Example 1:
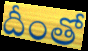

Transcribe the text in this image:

దీంతో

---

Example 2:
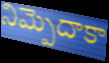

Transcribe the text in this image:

నిమ్పెదాకా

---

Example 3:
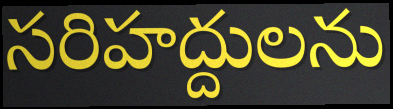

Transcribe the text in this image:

సరిహద్దులను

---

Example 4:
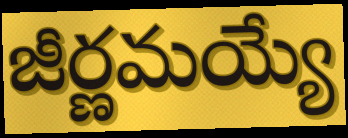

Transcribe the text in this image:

జీర్ణమయ్యే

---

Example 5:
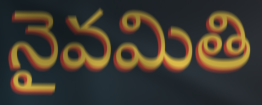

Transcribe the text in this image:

నైవమితి